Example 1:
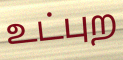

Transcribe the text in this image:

உட்புற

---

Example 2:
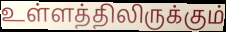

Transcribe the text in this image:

உள்ளத்திலிருக்கும்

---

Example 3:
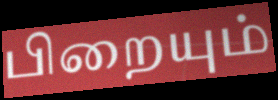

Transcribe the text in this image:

பிறையும்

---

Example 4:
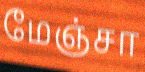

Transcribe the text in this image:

மேஞ்சா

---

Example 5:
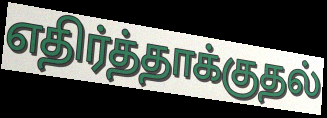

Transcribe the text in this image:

எதிர்த்தாக்குதல்